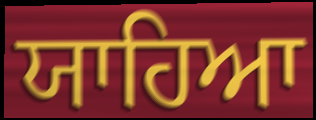
ਯਾਹਿਆ